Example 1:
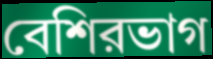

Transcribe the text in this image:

বেশিরভাগ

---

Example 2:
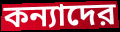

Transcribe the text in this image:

কন্যাদের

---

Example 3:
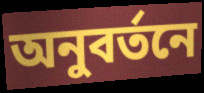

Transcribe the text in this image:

অনুবর্তনে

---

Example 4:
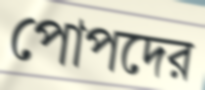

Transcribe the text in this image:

পোপদের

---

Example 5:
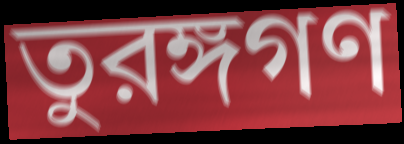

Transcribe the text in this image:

তুরঙ্গগণ